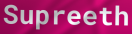
Supreeth